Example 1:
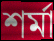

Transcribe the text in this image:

শৰ্মা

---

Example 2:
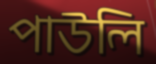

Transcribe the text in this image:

পাউলি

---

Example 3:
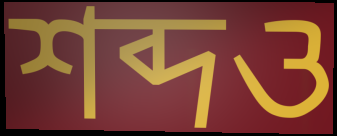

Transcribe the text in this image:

শব্দও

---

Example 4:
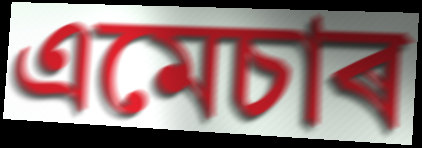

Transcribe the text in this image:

এমেচাৰ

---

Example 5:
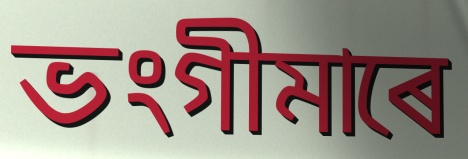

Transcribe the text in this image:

ভংগীমাৰে